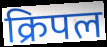
क्रिपल